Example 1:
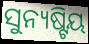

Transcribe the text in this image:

ସୁନ୍ୟଷ୍ଟିୟ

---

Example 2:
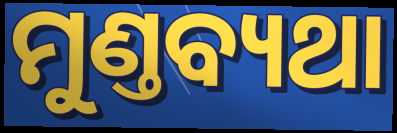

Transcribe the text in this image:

ମୁଣ୍ତବ୍ୟଥା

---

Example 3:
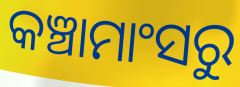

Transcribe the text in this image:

କଞ୍ଚାମାଂସରୁ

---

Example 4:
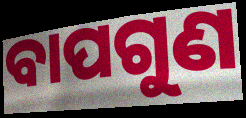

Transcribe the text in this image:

ବାପଗୁଣ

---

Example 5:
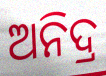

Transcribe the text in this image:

ଅନିଦ୍ର